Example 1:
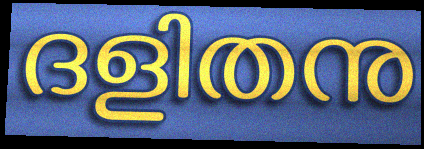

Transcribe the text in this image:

ദളിതനു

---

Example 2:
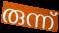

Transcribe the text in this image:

രുന്ന്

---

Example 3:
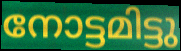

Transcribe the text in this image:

നോട്ടമിട്ടു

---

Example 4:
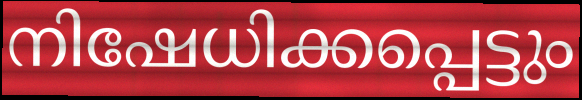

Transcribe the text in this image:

നിഷേധിക്കപ്പെട്ടും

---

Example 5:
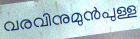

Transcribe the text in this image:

വരവിനുമുൻപുള്ള